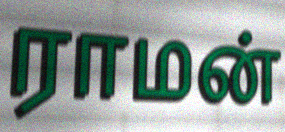
ராமன்